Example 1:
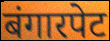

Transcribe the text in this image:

बंगारपेट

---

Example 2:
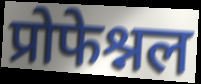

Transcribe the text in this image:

प्रोफेश्नल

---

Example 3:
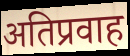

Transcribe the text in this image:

अतिप्रवाह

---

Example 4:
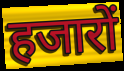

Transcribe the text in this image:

हजारों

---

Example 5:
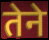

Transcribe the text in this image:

तेने